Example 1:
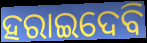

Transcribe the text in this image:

ହରାଇଦେବି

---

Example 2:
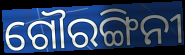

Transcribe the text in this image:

ଗୌରଙ୍ଗିନୀ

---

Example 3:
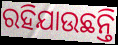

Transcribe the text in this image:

ରହିଯାଉଛନ୍ତି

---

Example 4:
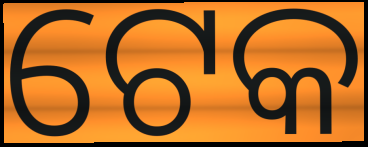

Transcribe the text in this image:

ଟେକ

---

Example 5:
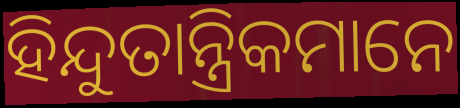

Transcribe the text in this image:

ହିନ୍ଦୁତାନ୍ତ୍ରିକମାନେ